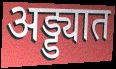
अड्ड्यात